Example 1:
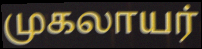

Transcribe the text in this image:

முகலாயர்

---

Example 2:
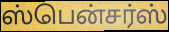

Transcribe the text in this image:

ஸ்பென்சர்ஸ்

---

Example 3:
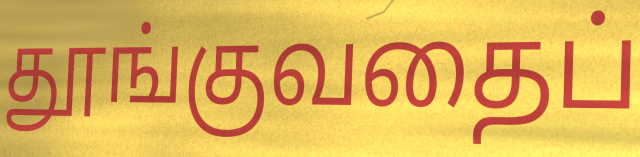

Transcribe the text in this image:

தூங்குவதைப்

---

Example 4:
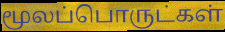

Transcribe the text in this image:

மூலப்பொருட்கள்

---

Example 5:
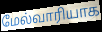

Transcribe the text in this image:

மேல்வாரியாக